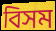
বিসম